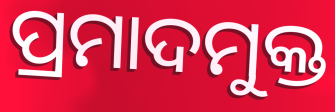
ପ୍ରମାଦମୁକ୍ତ